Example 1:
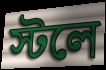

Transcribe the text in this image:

স্টলে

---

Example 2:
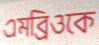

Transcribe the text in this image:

এমব্রিওকে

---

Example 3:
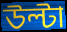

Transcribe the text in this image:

উল্টা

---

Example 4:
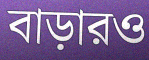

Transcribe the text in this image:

বাড়ারও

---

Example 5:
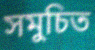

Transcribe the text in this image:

সমুচিত